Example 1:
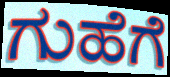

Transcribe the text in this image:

ಗುಹೆಗೆ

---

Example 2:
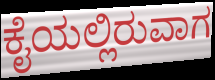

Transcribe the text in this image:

ಕೈಯಲ್ಲಿರುವಾಗ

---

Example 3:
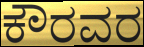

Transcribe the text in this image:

ಕೌರವರ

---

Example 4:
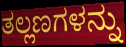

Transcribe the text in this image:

ತಲ್ಲಣಗಳನ್ನು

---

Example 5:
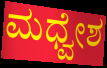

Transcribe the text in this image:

ಮಧ್ವೇಶ